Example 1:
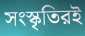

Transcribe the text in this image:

সংস্কৃতিরই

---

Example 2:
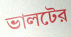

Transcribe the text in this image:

ভালটের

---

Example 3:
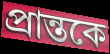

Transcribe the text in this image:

প্রান্তকে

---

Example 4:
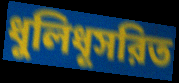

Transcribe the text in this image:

ধুলিধূসরিত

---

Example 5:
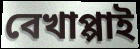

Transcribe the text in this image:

বেখাপ্পাই